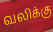
வலிக்கு